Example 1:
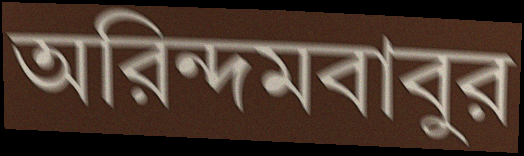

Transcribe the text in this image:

অরিন্দমবাবুর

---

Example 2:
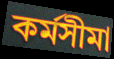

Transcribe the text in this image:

কর্মসীমা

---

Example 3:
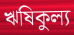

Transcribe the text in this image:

ঋষিকুল্য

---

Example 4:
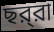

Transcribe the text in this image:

ছর্‌রা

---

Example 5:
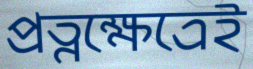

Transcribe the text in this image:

প্রত্নক্ষেত্রেই